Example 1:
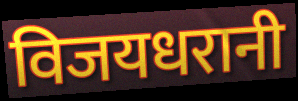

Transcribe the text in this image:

विजयधरानी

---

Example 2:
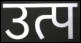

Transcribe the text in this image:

उत्प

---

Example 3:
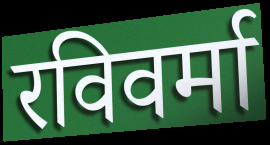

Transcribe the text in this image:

रविवर्मा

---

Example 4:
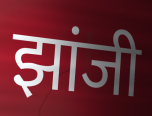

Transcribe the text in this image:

झांजी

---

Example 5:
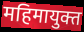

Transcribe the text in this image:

महिमायुक्‍त